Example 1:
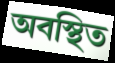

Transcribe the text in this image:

অবস্থিত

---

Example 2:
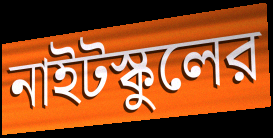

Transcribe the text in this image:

নাইটস্কুলের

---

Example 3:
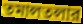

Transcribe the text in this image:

তমালতলার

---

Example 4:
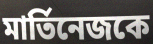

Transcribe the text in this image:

মার্তিনেজকে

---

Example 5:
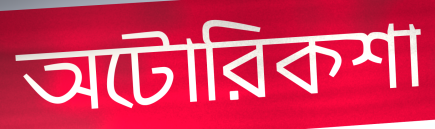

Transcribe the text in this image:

অটোরিকশা